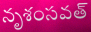
నృశంసవత్